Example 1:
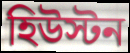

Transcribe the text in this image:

হিউস্টন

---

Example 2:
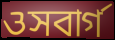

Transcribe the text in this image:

ওসবার্গ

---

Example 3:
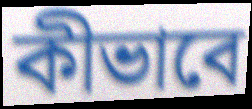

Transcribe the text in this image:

কীভাবে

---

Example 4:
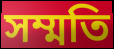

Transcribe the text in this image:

সম্মতি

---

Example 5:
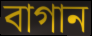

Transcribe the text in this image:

বাগান